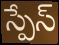
స్పేస్